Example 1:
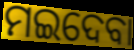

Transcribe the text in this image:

ମଇଦେବା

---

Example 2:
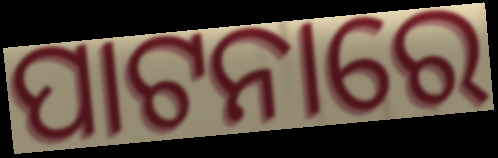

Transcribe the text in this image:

ପାଟନାରେ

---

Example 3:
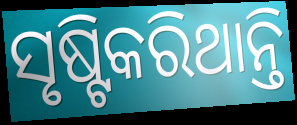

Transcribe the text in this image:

ସୃଷ୍ଟିକରିଥାନ୍ତି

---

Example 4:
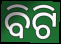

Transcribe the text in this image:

ବିଟି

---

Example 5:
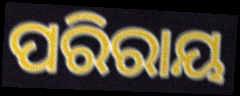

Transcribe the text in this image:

ପରିରାୟ